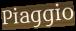
Piaggio